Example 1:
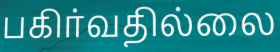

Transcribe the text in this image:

பகிர்வதில்லை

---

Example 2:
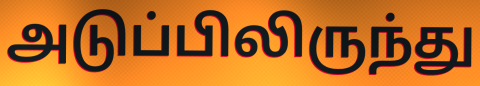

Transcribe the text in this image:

அடுப்பிலிருந்து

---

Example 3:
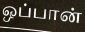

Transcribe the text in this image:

ஒப்பான்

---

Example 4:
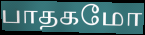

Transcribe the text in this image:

பாதகமோ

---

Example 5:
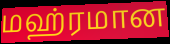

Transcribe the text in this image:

மஹ்ரமான